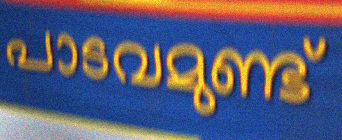
പാടവമുണ്ട്